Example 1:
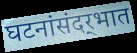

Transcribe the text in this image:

घटनांसंदर्भात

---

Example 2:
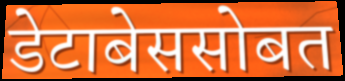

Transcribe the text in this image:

डेटाबेससोबत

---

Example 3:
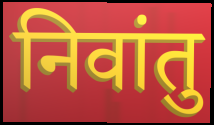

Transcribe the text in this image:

निवांतु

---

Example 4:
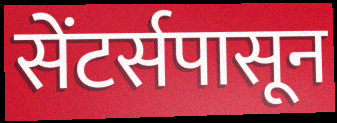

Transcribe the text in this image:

सेंटर्सपासून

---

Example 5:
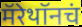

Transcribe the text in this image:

मॅरेथॉनचं